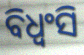
ବିଧ୍ୱଂସି